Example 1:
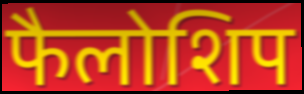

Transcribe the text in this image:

फैलोशिप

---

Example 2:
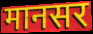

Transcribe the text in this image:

मानसर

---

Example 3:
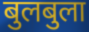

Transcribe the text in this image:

बुलबुला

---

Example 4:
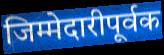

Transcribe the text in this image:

जिम्मेदारीपूर्वक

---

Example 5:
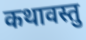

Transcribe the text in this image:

कथावस्तु